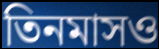
তিনমাসও